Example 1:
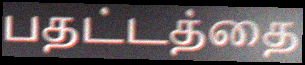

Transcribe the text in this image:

பதட்டத்தை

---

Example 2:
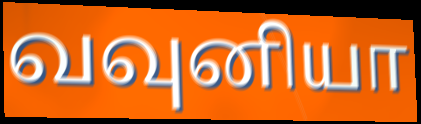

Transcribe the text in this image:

வவுனியா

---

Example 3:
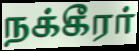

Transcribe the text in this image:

நக்கீரர்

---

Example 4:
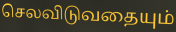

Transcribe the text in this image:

செலவிடுவதையும்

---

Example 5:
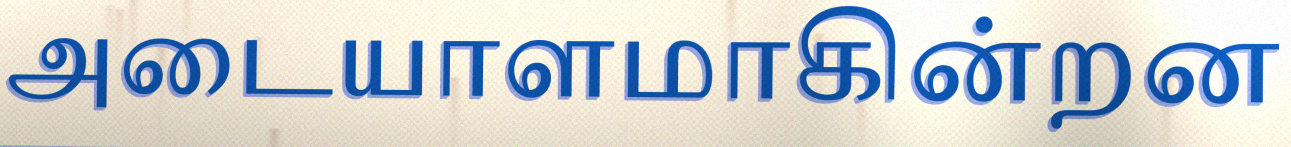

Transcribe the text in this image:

அடையாளமாகின்றன